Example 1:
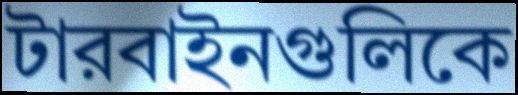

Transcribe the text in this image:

টারবাইনগুলিকে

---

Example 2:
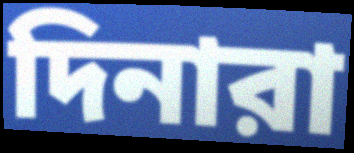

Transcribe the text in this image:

দিনারা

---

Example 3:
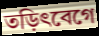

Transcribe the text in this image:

তড়িৎবেগে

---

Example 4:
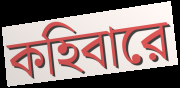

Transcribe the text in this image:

কহিবারে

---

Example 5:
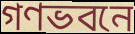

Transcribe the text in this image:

গণভবনে